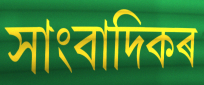
সাংবাদিকৰ